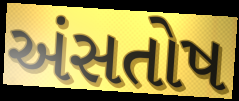
અંસતોષ